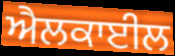
ਐਲਕਾਈਲ